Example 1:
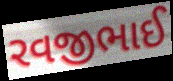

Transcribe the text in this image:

રવજીભાઈ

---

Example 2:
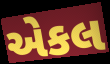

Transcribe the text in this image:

એકલ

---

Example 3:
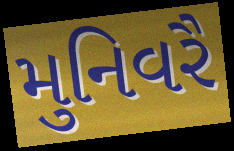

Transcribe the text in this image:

મુનિવરૈ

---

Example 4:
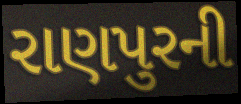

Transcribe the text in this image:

રાણપુરની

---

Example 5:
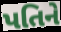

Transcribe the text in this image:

પતિને